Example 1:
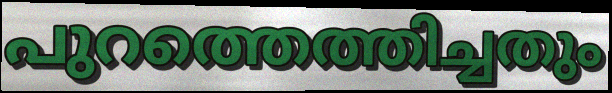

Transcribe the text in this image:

പുറത്തെത്തിച്ചതും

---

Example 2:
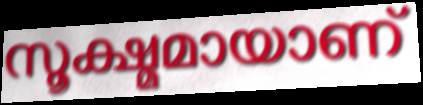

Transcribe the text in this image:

സൂക്ഷ്മമായാണ്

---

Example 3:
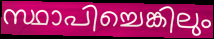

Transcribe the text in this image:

സ്ഥാപിച്ചെങ്കിലും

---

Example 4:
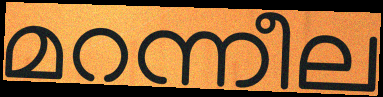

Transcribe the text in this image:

മറന്നീല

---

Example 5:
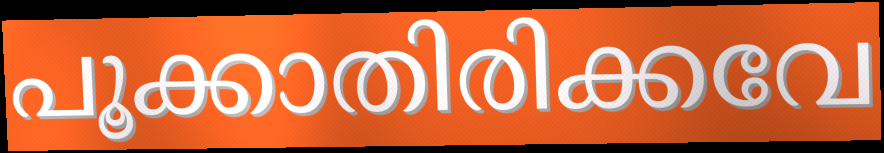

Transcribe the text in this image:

പൂക്കാതിരിക്കവേ